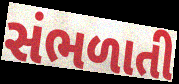
સંભળાતી